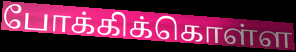
போக்கிக்கொள்ள